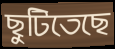
ছুটিতেছে